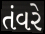
તંવરે